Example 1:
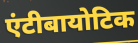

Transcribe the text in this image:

एंटीबायोटिक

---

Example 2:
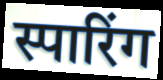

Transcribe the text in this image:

स्पारिंग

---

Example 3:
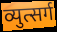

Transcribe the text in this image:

व्युत्सर्ग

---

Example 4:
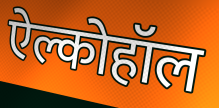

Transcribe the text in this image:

ऐल्कोहॉल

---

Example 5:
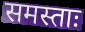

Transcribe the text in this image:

समस्ताः